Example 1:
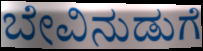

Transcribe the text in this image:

ಬೇವಿನುಡುಗೆ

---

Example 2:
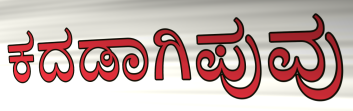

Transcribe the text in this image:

ಕದಡಾಗಿಪುವು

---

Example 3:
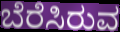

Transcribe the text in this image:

ಬೆರೆಸಿರುವ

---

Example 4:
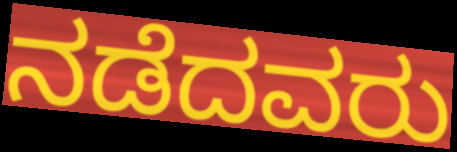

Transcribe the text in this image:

ನಡೆದವರು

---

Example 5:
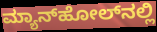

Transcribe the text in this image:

ಮ್ಯಾನ್‌ಹೋಲ್‌ನಲ್ಲಿ